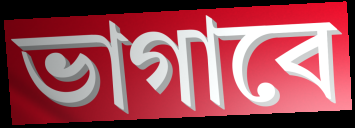
ভাগাবে